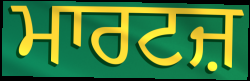
ਮਾਰਟਜ਼